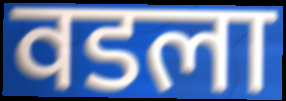
वडला